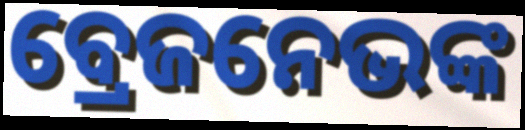
ବ୍ରେଜନେଭଙ୍କ